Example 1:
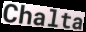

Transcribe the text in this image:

Chalta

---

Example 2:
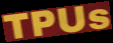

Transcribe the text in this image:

TPUs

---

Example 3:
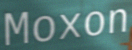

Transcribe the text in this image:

Moxon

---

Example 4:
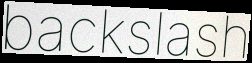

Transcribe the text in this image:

backslash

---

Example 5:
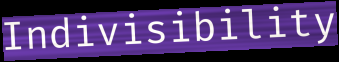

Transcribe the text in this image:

Indivisibility